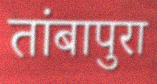
तांबापुरा